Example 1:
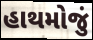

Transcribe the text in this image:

હાથમોજું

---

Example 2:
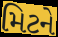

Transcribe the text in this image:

મિટને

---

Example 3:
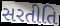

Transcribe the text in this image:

સરતીતિ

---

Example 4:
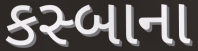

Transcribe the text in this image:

કસ્બાના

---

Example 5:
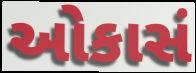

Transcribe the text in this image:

ઓકાસં